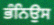
ਭੰਨਿਉਸ